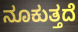
ನೂಕುತ್ತದೆ